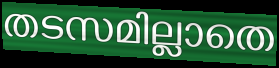
തടസമില്ലാതെ